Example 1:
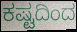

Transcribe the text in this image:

ಕಷ್ಟದಿಂದ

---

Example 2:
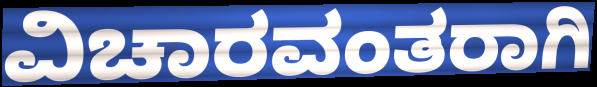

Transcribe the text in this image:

ವಿಚಾರವಂತರಾಗಿ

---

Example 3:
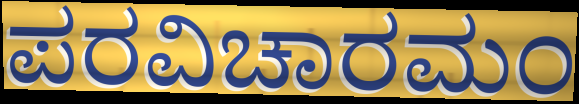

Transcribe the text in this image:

ಪರವಿಚಾರಮಂ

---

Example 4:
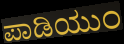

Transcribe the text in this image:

ಪಾಡಿಯುಂ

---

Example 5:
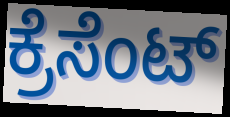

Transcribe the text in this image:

ಕ್ರೆಸೆಂಟ್